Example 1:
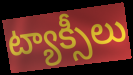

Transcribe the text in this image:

ట్యాక్సీలు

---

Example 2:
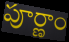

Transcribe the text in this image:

పూర్ణాం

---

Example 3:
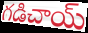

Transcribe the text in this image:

గడిచాయ్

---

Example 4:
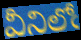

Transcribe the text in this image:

వీనిలోఁ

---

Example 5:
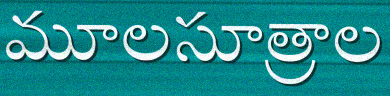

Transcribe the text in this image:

మూలసూత్రాల